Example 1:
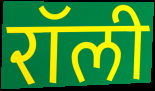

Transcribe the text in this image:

रॉली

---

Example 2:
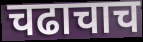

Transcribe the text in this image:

चढाचाच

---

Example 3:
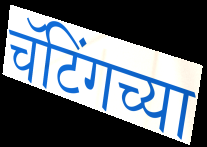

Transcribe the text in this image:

चॅटिंगच्या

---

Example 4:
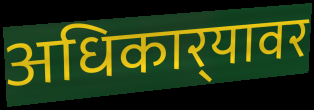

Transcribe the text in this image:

अधिकार्‍यावर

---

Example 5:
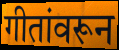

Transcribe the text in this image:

गीतांवरून